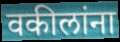
वकीलांना